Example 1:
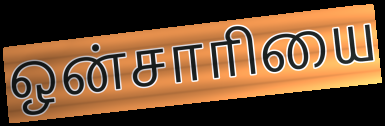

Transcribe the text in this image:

ஒன்சாரியை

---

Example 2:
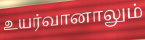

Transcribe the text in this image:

உயர்வானாலும்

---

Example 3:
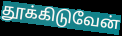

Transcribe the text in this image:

தூக்கிடுவேன்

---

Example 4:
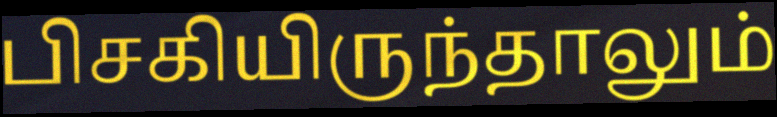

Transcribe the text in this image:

பிசகியிருந்தாலும்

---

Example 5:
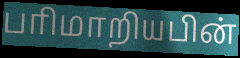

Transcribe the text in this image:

பரிமாறியபின்